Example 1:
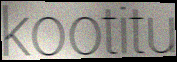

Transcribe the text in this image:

kootitu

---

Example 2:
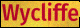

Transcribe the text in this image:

Wycliffe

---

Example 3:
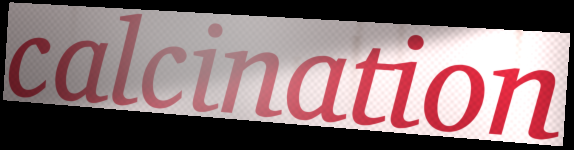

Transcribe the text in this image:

calcination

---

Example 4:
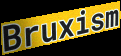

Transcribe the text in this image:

Bruxism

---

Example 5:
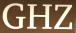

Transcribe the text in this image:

GHZ